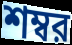
শম্বর